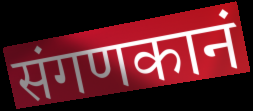
संगणकानं